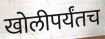
खोलीपर्यंतच